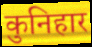
कुनिहार